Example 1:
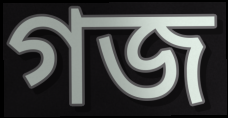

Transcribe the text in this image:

গজ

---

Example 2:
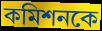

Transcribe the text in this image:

কমিশনকে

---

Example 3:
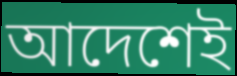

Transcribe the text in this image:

আদেশেই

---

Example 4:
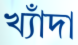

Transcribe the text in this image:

খ্যাঁদা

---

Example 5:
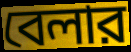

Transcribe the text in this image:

বেলার